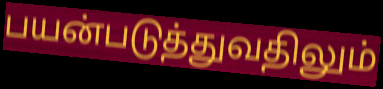
பயன்படுத்துவதிலும்